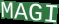
MAGI